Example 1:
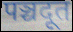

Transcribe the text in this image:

पञ्चदूत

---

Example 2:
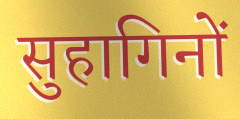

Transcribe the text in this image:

सुहागिनों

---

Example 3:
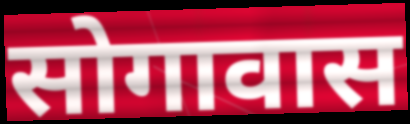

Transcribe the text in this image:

सोगावास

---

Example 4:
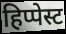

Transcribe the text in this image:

हिप्पेस्ट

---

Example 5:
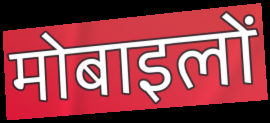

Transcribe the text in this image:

मोबाइलों